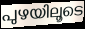
പുഴയിലൂടെ